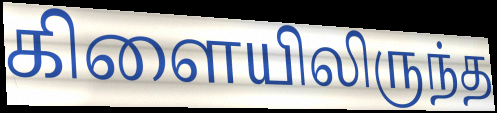
கிளையிலிருந்த